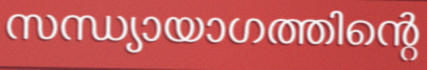
സന്ധ്യായാഗത്തിന്റെ